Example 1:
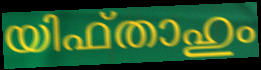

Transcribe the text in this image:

യിഫ്താഹും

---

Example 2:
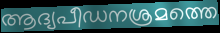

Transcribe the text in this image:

ആദ്യപീഡനശ്രമത്തെ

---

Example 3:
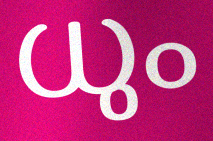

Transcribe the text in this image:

ധും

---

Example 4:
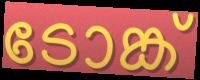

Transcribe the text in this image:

ടോങ്ക്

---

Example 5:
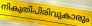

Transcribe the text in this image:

നികുതിപിരിവുകാരും